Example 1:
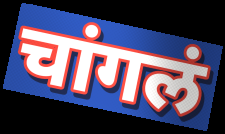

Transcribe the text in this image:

चांगलं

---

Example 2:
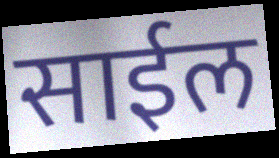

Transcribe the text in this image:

साईल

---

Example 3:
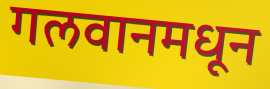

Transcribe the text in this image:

गलवानमधून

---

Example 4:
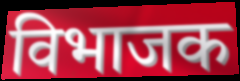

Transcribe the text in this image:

विभाजक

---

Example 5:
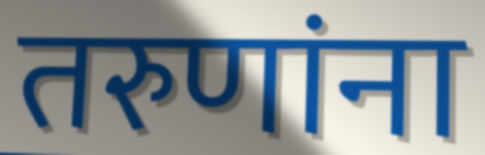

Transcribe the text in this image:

तरुणांना